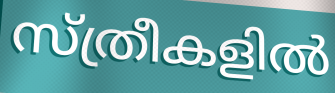
സ്ത്രീകളിൽ